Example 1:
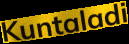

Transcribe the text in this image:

Kuntaladi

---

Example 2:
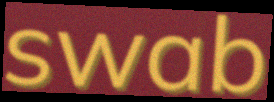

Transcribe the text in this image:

swab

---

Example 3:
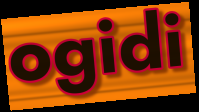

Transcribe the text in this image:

ogidi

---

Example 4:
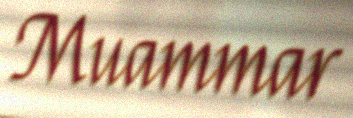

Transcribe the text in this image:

Muammar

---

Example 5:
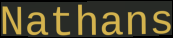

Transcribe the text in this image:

Nathans